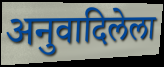
अनुवादिलेला